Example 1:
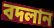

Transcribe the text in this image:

বদলান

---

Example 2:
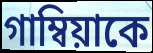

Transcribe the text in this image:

গাম্বিয়াকে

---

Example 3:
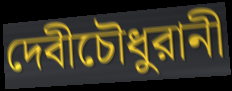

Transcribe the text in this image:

দেবীচৌধুরানী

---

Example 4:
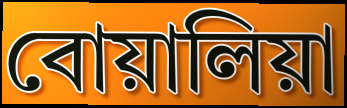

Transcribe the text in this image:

বোয়ালিয়া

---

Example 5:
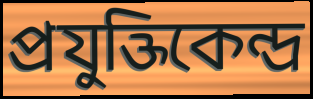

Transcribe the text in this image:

প্রযুক্তিকেন্দ্র